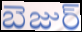
బెజుర్